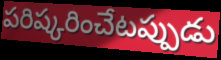
పరిష్కరించేటప్పుడు